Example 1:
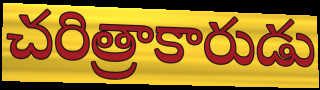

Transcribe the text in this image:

చరిత్రాకారుడు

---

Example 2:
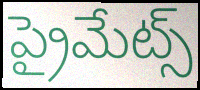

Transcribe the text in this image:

ప్రైమేట్స్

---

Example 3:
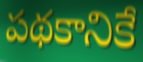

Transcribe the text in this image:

పథకానికే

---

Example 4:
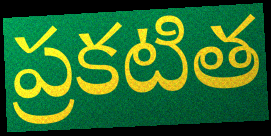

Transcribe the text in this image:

ప్రకటిత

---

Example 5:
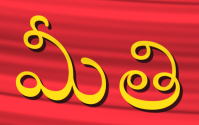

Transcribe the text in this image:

మీతి